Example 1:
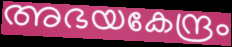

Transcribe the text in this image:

അഭയകേന്ദ്രം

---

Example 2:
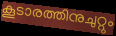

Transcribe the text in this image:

കൂടാരത്തിനുചുറ്റും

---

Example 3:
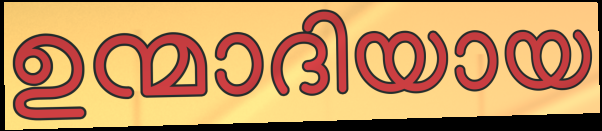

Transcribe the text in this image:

ഉന്മാദിയായ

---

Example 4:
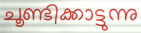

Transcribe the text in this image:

ചൂണ്ടിക്കാട്ടുന്നു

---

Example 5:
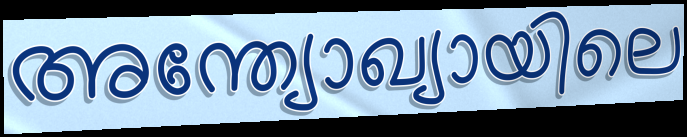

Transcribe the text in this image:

അന്ത്യോഖ്യായിലെ